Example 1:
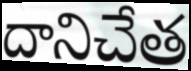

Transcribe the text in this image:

దానిచేత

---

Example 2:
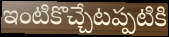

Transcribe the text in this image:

ఇంటికొచ్చేటప్పటికి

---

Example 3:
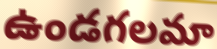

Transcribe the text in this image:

ఉండగలమా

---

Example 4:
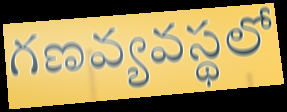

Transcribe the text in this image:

గణవ్యవస్థలో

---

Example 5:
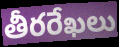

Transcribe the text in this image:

తీరరేఖలు